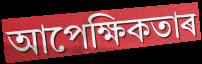
আপেক্ষিকতাৰ